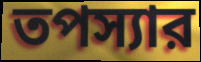
তপস্যার